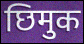
छिमुक